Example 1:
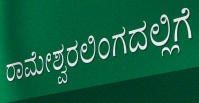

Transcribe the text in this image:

ರಾಮೇಶ್ವರಲಿಂಗದಲ್ಲಿಗೆ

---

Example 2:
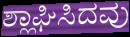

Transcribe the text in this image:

ಶ್ಲಾಘಿಸಿದವು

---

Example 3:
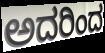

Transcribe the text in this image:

ಅದರಿಂದ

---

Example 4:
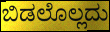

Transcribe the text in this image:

ಬಿಡಲೊಲ್ಲದು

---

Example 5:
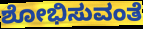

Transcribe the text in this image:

ಶೋಭಿಸುವಂತೆ